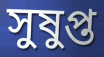
সুষুপ্ত